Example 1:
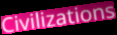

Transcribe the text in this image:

Civilizations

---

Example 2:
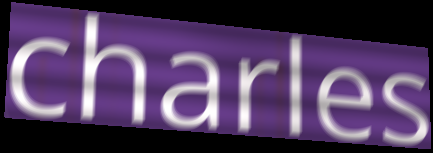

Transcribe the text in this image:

charles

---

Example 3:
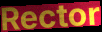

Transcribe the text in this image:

Rector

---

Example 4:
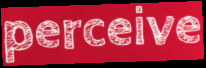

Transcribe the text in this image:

perceive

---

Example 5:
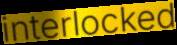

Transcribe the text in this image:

interlocked